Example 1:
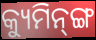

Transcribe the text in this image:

କ୍ୟୁମିନ୍‌ଙ୍ଗ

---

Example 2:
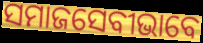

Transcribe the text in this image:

ସମାଜସେବୀଭାବେ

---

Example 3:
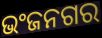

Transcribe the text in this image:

ଭଂଜନଗର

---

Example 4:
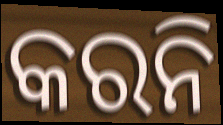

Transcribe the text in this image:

କରନି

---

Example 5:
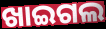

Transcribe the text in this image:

ଖାଇଗଲ